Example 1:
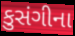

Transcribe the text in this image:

કુસંગીના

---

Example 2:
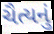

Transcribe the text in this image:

ચૈત્યનું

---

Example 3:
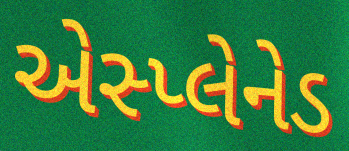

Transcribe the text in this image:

એસ્પ્લેનેડ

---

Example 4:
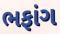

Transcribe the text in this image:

ભફાંગ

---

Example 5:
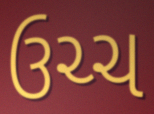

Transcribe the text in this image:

ઉચ્ચ